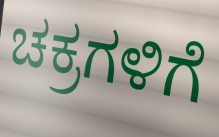
ಚಕ್ರಗಳಿಗೆ